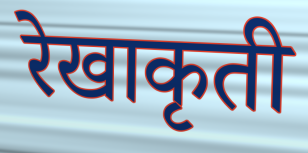
रेखाकृती